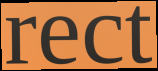
rect